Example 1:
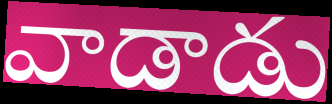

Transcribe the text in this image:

వాడాడు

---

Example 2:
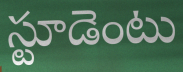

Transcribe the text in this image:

స్టూడెంటు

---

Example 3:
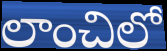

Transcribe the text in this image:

లాంచిలో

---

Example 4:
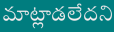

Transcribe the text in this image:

మాట్లాడలేదని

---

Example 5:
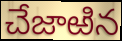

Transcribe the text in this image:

చేజాఱిన